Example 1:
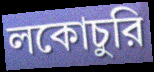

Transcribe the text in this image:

লকোচুরি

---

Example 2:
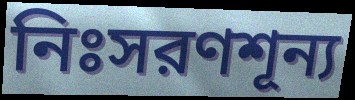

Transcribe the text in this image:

নিঃসরণশূন্য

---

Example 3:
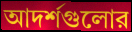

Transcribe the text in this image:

আদর্শগুলোর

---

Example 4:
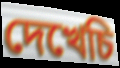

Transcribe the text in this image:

দেখেচি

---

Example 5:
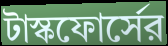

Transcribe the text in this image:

টাস্কফোর্সের